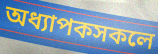
অধ্যাপকসকলে